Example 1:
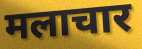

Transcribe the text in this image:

मलाचार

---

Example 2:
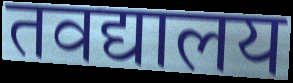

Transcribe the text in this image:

तवद्यालय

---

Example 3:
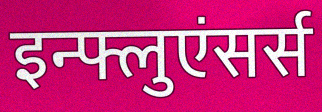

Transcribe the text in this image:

इन्फ्लुएंसर्स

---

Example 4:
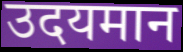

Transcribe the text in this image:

उदयमान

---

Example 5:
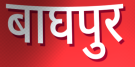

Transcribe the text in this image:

बाघपुर